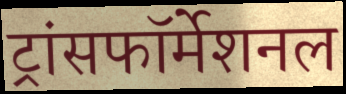
ट्रांसफॉर्मेशनल